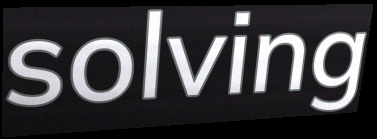
solving